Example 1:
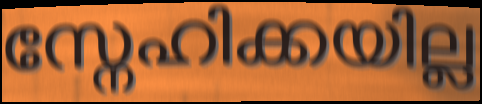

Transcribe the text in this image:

സ്നേഹിക്കയില്ല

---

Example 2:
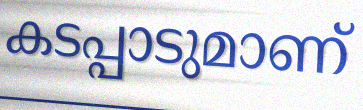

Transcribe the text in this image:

കടപ്പാടുമാണ്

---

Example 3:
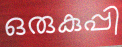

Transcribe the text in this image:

ഒരുകുപ്പി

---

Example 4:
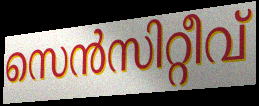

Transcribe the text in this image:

സെൻസിറ്റീവ്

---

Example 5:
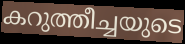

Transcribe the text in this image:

കറുത്തീച്ചയുടെ